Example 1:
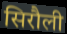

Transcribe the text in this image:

सिरौली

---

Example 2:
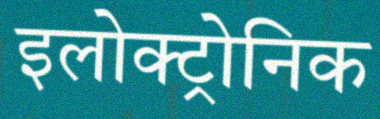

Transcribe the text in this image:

इलोक्ट्रोनिक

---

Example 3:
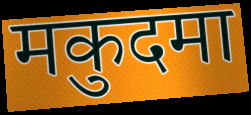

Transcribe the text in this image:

मकुदमा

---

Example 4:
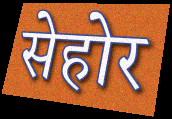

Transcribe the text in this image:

सेहोर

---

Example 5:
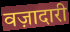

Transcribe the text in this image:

वज़ादारी